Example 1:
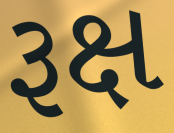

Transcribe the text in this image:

રૂક્ષ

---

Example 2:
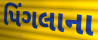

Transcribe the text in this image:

પિંગલાના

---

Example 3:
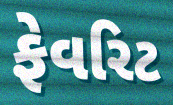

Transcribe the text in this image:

ફેવરિટ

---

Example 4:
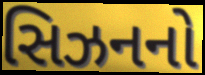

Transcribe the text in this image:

સિઝનનો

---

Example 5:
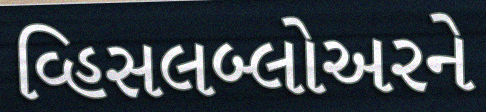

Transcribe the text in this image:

વ્હિસલબ્લોઅરને